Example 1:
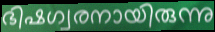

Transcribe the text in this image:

ഭിഷഗ്വരനായിരുന്നു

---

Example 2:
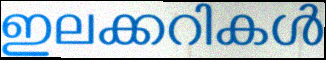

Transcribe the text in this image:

ഇലക്കറികൾ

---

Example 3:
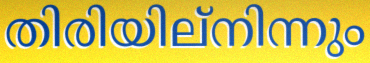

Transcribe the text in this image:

തിരിയില്നിന്നും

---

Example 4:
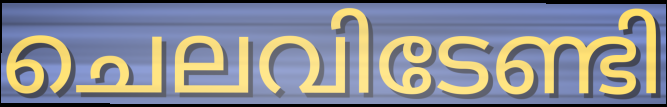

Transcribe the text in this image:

ചെലവിടേണ്ടി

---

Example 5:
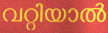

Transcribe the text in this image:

വറ്റിയാൽ